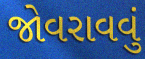
જોવરાવવું